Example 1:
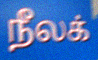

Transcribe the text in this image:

நீலக்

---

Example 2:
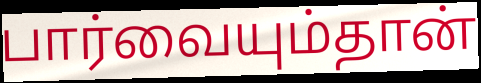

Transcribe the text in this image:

பார்வையும்தான்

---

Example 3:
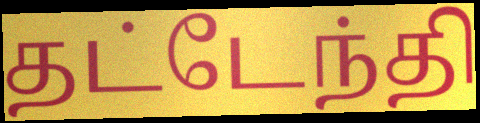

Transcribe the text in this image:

தட்டேந்தி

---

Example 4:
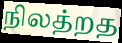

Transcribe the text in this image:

நிலத்றத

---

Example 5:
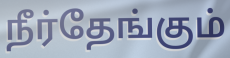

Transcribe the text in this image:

நீர்தேங்கும்